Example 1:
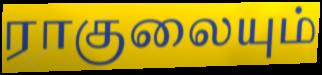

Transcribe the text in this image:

ராகுலையும்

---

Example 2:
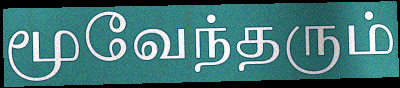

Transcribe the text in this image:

மூவேந்தரும்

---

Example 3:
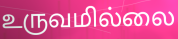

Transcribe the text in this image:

உருவமில்லை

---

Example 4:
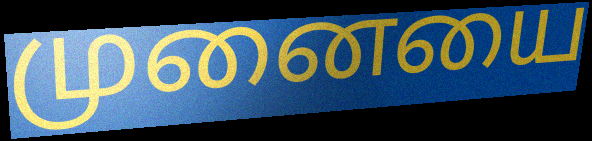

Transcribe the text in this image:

முனையை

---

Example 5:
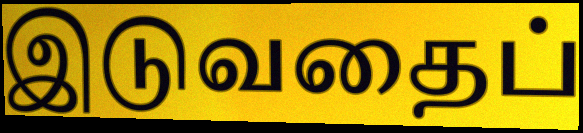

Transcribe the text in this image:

இடுவதைப்